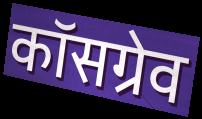
कॉसग्रेव